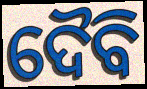
ଦୈବି